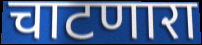
चाटणारा